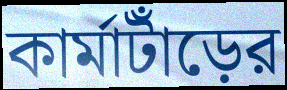
কার্মাটাঁড়ের